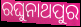
ରଘୁନାଥପୁର